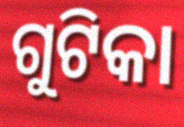
ଗୁଟିକା